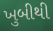
ખુબીથી